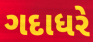
ગદાધરે